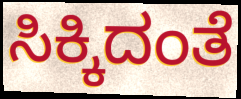
ಸಿಕ್ಕಿದಂತೆ